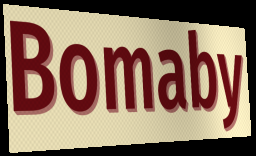
Bomaby